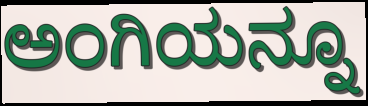
ಅಂಗಿಯನ್ನೂ